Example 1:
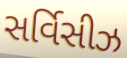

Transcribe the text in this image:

સર્વિસીઝ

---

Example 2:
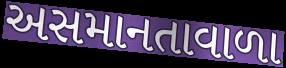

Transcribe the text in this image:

અસમાનતાવાળા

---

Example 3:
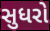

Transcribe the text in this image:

સુધરો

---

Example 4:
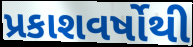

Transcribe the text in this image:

પ્રકાશવર્ષોથી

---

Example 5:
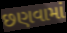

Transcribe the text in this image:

છણવામાં